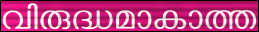
വിരുദ്ധമാകാത്ത